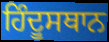
ਹਿੰਦੂਸਥਾਨ